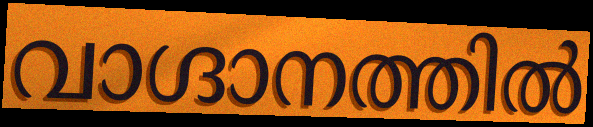
വാഗ്ദാനത്തിൽ